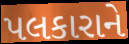
પલકારાને